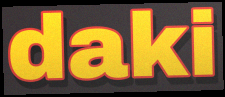
daki